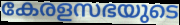
കേരളസഭയുടെ